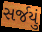
સર્જયું